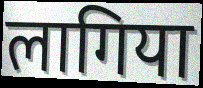
लागिया